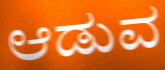
ಆಡುವ